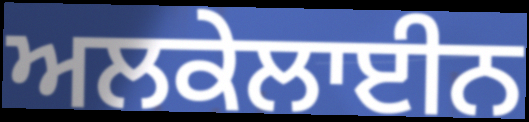
ਅਲਕੇਲਾਈਨ